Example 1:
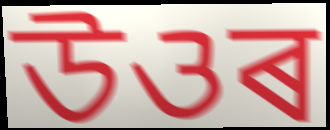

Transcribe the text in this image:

উওৰ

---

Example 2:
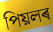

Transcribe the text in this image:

পিয়লৰ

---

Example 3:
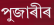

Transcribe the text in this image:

পুজাৰীৰ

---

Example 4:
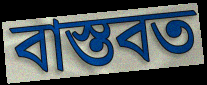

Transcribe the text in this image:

বাস্তবত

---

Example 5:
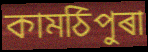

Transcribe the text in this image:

কামঠিপুৰা